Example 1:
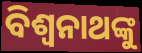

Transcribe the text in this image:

ବିଶ୍ବନାଥଙ୍କୁ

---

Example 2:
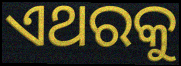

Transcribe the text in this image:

ଏଥରକୁ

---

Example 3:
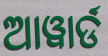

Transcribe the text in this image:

ଆୱାର୍ଡ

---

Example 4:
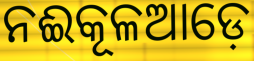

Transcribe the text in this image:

ନଈକୂଳଆଡ଼େ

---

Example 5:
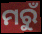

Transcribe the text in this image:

ମରୁଁ